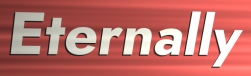
Eternally